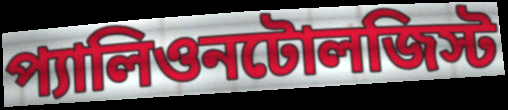
প্যালিওনটোলজিস্ট